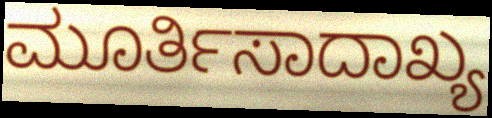
ಮೂರ್ತಿಸಾದಾಖ್ಯ